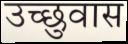
उच्छुवास